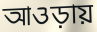
আওড়ায়